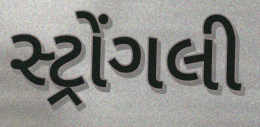
સ્ટ્રોંગલી